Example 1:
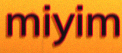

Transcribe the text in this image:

miyim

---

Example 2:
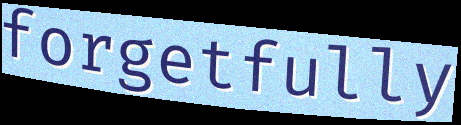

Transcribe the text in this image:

forgetfully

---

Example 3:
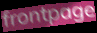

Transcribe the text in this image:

frontpage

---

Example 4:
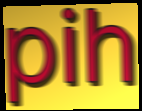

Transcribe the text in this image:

pih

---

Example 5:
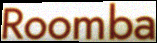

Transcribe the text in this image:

Roomba